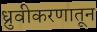
ध्रुवीकरणातून